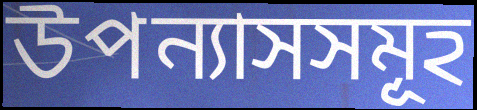
উপন্যাসসমূহ